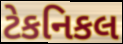
ટેકનિકલ